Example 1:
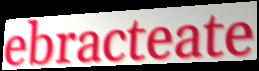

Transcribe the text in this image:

ebracteate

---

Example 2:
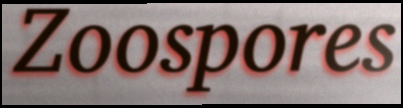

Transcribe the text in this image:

Zoospores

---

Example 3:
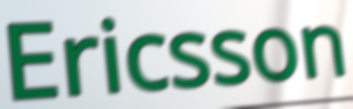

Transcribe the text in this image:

Ericsson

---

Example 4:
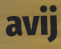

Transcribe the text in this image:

avij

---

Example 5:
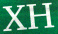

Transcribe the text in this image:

XH